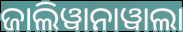
ଜାଲିୱାନାୱାଲା